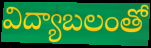
విద్యాబలంతో